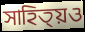
সাহিত্য়ও